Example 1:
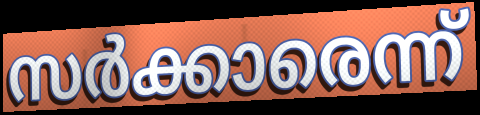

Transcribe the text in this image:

സർക്കാരെന്ന്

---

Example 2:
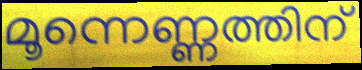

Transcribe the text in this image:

മൂന്നെണ്ണത്തിന്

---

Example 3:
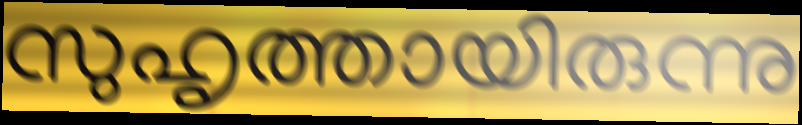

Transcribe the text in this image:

സുഹൃത്തായിരുന്നു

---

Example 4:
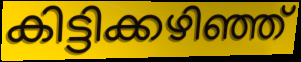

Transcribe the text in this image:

കിട്ടിക്കഴിഞ്ഞ്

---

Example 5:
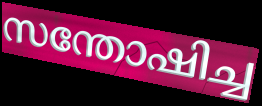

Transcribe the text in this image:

സന്തോഷിച്ച